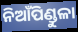
ନିଆଁପିଣ୍ଡୁଳା